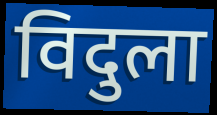
विदुला